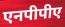
एनपीपीए